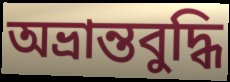
অভ্রান্তবুদ্ধি